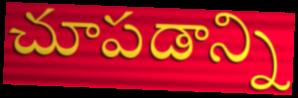
చూపడాన్ని